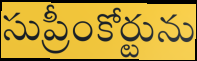
సుప్రీంకోర్టును